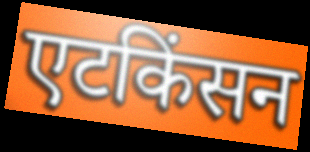
एटकिंसन